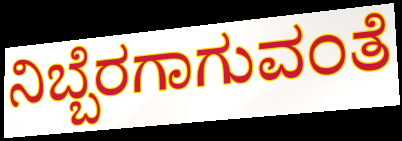
ನಿಬ್ಬೆರಗಾಗುವಂತೆ